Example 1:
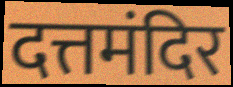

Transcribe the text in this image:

दत्तमंदिर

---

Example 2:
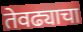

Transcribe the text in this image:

तेवढ्याचा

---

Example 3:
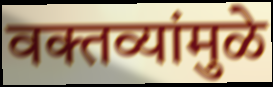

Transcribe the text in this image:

वक्तव्यांमुळे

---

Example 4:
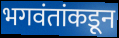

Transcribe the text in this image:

भगवंतांकडून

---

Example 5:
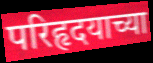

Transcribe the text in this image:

परिहृदयाच्या